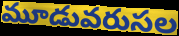
మూడువరుసల